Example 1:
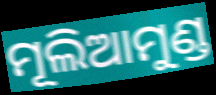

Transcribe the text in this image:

ମୂଲିଆମୁଣ୍ଡ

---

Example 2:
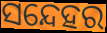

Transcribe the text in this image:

ସନ୍ଦେହର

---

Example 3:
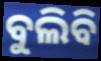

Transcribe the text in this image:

ବୁଲିବି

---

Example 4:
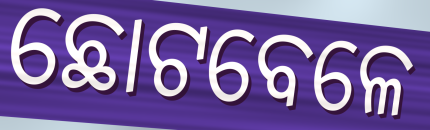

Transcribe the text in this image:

ଛୋଟବେଳେ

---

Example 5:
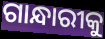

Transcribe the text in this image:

ଗାନ୍ଧାରୀକୁ